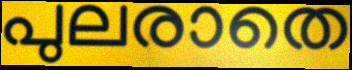
പുലരാതെ